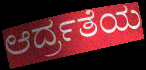
ಆರ್ದ್ರತೆಯ